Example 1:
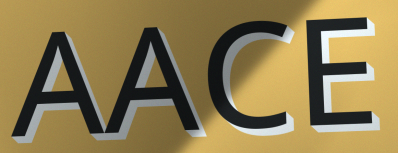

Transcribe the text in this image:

AACE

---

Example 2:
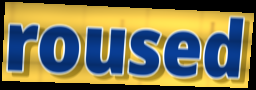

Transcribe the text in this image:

roused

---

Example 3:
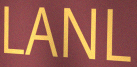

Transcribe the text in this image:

LANL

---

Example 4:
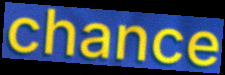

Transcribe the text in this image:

chance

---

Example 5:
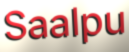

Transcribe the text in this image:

Saalpu